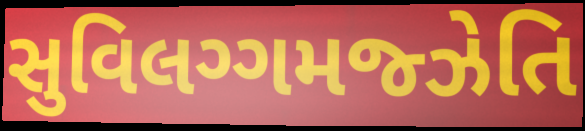
સુવિલગ્ગમજ્ઝેતિ